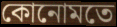
কোনোমতে